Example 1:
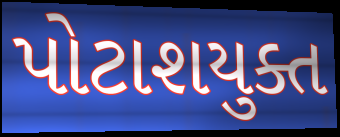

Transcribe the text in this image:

પોટાશયુક્ત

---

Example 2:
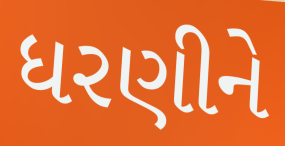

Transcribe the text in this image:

ધરણીને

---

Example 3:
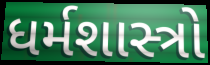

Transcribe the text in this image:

ધર્મશાસ્ત્રો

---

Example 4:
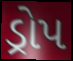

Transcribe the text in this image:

ડ્રોપ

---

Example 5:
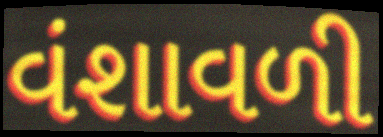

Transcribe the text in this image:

વંશાવળી